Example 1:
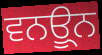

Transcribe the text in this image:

ਵਨਊ੍ਨ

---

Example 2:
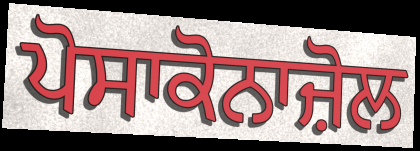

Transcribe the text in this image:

ਪੋਸਾਕੋਨਾਜ਼ੋਲ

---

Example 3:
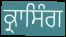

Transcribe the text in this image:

ਕ੍ਰਾਸਿੰਗ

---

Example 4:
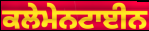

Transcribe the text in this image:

ਕਲੇਮੇਨਟਾਈਨ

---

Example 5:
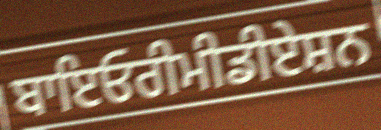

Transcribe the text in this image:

ਬਾਇਓਰੀਮੀਡੀਏਸ਼ਨ